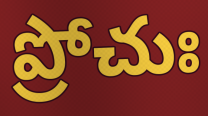
ప్రోచుః